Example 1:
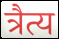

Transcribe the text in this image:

त्रैत्य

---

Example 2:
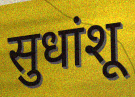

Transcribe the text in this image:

सुधांशू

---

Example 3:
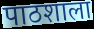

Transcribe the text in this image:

पाठशाला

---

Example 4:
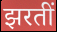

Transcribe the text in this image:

झरतीं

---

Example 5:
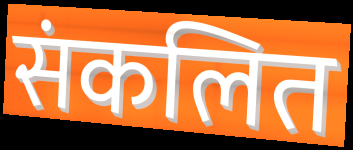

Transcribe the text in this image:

संकलित